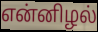
என்னிழல்